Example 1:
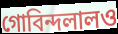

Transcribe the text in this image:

গোবিন্দলালও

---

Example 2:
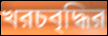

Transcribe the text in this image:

খরচবৃদ্ধির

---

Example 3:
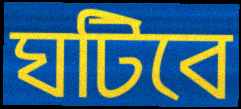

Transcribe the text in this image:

ঘটিবে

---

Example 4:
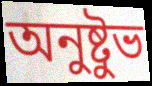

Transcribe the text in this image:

অনুষ্টুভ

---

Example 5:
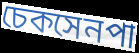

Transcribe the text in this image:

চেকসেনপা